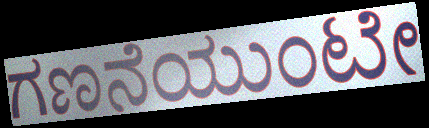
ಗಣನೆಯುಂಟೇ